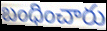
బంధించారు